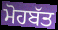
ਮੋਹਬੱਤ